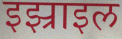
इझ्राइल